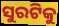
ସୁରଟିକୁ